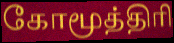
கோமூத்திரி